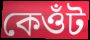
কেওঁট